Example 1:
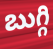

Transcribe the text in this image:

బుగ్గి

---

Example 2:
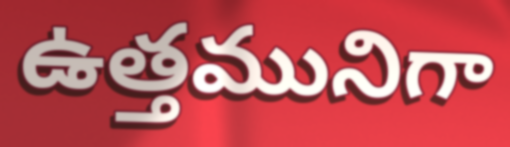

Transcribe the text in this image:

ఉత్తమునిగా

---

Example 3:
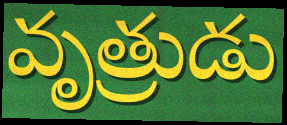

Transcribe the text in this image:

వృత్రుడు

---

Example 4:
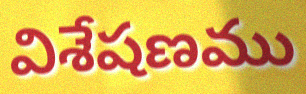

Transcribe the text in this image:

విశేషణము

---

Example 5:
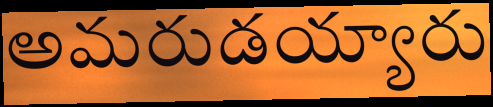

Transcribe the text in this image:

అమరుడయ్యారు